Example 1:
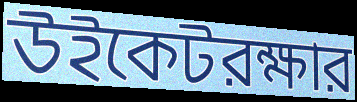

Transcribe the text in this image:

উইকেটরক্ষার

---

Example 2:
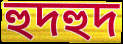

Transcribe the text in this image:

হুদহুদ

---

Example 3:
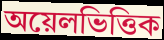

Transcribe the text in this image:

অয়েলভিত্তিক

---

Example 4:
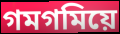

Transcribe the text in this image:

গমগমিয়ে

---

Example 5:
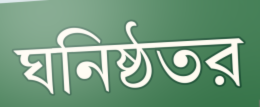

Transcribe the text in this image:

ঘনিষ্ঠতর